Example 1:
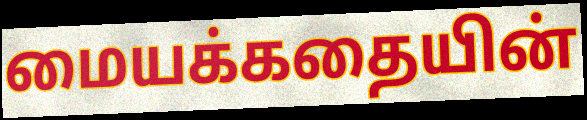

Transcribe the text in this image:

மையக்கதையின்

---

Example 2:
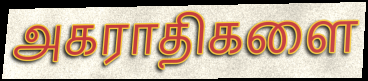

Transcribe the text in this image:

அகராதிகளை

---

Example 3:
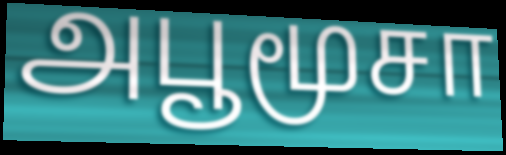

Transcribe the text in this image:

அபூமூசா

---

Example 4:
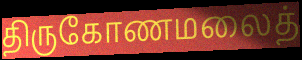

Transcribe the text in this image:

திருகோணமலைத்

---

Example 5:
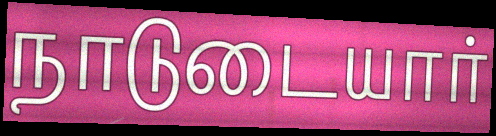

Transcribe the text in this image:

நாடுடையார்